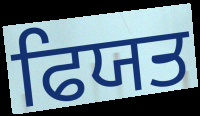
ਫਿਯਤ